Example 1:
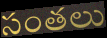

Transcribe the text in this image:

సంతలు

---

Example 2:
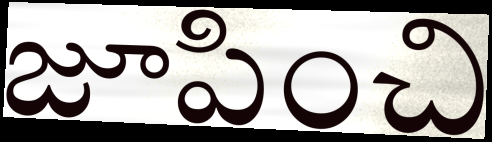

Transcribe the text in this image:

జూపించి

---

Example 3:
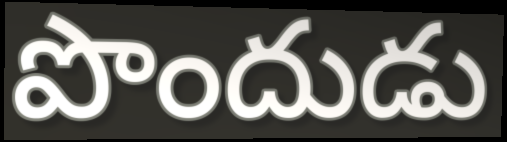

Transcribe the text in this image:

పొందుడు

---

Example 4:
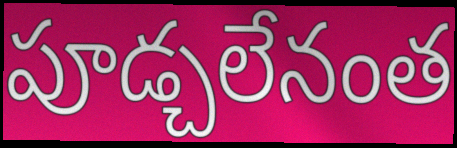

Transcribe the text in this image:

పూడ్చలేనంత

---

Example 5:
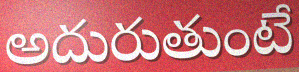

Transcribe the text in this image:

అదురుతుంటే